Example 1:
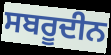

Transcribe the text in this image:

ਸਬਰੂਦੀਨ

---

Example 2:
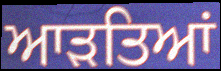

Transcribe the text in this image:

ਆੜਤਿਆਂ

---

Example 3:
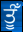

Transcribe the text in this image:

ਤੂੰਁ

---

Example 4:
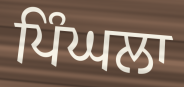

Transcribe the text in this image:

ਪਿੰਘਲਾ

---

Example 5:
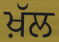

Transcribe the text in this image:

ਖ਼ੱਲ